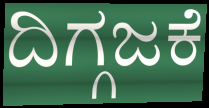
ದಿಗ್ಗಜಕೆ